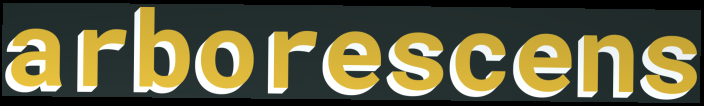
arborescens